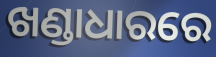
ଖଣ୍ଡାଧାରରେ